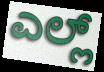
ಎಲ್ಲ್